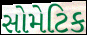
સોમેટિક